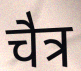
चैत्र